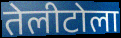
तेलीटोला